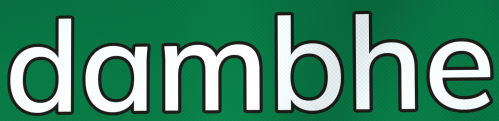
dambhe